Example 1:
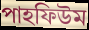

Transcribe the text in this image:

পাহফিউম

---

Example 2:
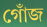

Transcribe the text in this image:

গোঁজ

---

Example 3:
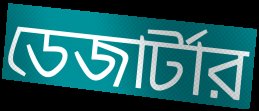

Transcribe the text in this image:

ডেজার্টার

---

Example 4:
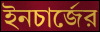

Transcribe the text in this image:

ইনচার্জের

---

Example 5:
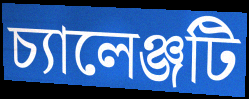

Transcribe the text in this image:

চ্যালেঞ্জটি